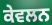
ਕੇਵਲਨ